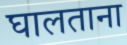
घालताना